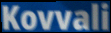
Kovvali